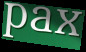
pax